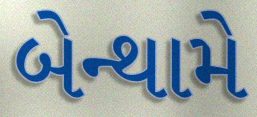
બેન્થામે